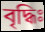
বৃদ্ধিঃ